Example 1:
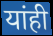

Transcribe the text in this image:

यांही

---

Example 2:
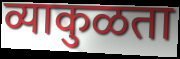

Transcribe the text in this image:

व्याकुळता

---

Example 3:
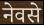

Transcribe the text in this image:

नेवसे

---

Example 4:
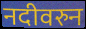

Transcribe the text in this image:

नदीवरुन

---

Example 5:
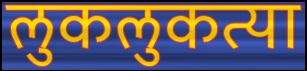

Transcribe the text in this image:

लुकलुकत्या